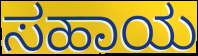
ಸಹಾಯ